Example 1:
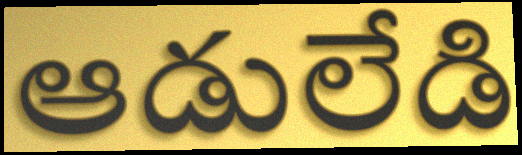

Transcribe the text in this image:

ఆడులేడి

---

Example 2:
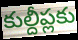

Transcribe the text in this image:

కుల్దీప్లకు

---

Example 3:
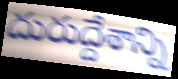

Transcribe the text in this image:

దురుద్దేశాన్ని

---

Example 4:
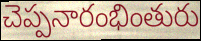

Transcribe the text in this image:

చెప్పనారంభింతురు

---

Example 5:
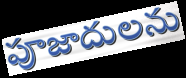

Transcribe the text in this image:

పూజాదులను